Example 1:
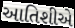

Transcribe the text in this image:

આતિશીએ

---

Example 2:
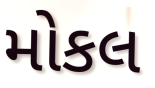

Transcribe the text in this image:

મોકલ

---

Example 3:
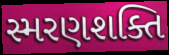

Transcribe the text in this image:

સ્મરણશક્તિ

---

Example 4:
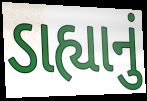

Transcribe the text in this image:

ડાહ્યાનું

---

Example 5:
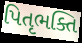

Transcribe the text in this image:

પિતૃભક્તિ